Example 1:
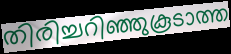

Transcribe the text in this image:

തിരിച്ചറിഞ്ഞുകൂടാത്ത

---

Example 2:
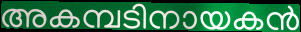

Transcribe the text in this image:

അകമ്പടിനായകൻ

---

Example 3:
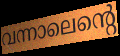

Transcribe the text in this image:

വന്നാലെന്റെ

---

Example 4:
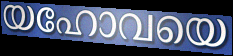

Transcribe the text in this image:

യഹോവയെ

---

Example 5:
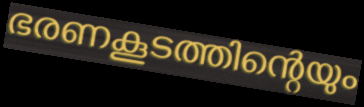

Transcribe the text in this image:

ഭരണകൂടത്തിന്റെയും